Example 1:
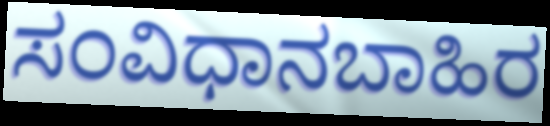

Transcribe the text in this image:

ಸಂವಿಧಾನಬಾಹಿರ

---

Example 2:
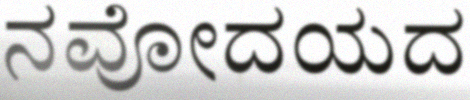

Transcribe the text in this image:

ನವೋದಯದ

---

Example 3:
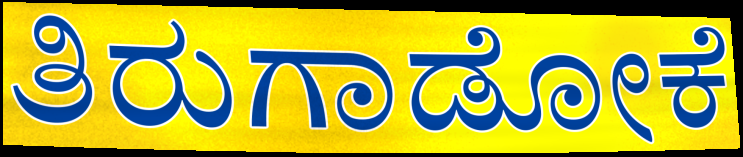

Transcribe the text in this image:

ತಿರುಗಾಡೋಕೆ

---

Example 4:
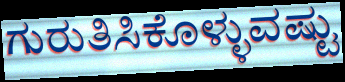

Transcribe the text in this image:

ಗುರುತಿಸಿಕೊಳ್ಳುವಷ್ಟು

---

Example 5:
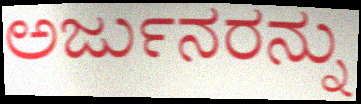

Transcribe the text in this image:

ಅರ್ಜುನರನ್ನು